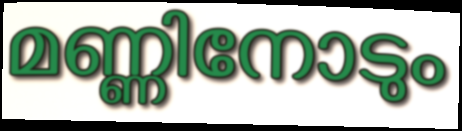
മണ്ണിനോടും